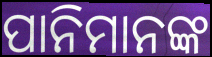
ପାନିମାନଙ୍କ